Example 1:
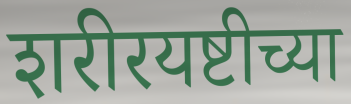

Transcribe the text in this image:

शरीरयष्टीच्या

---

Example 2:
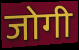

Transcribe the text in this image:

जोगी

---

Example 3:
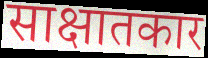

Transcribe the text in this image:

साक्षातकार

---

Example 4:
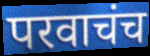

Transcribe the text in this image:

परवाचंच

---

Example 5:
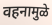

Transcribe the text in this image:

वहनामुळे